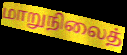
மாறுநிலைத்